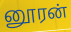
னூரன்